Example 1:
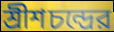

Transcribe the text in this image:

শ্রীশচন্দ্রের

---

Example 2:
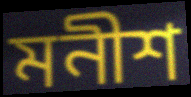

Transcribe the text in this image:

মনীশ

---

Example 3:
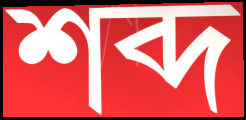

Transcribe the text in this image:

শব্দ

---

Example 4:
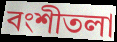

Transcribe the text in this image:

বংশীতলা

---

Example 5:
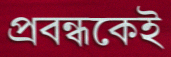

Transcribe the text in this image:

প্রবন্ধকেই